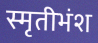
स्मृतीभंश